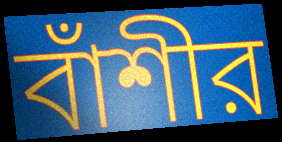
বাঁশীর